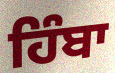
ਹਿੰਬਾ